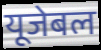
यूजेबल